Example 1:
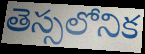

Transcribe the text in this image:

తెస్సలోనిక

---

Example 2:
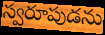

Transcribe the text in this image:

స్వరూపుడను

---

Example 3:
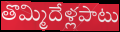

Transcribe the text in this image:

తొమ్మిదేళ్లపాటు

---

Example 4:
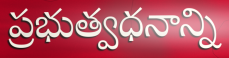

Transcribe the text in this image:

ప్రభుత్వధనాన్ని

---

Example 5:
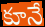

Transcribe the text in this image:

కూనే